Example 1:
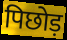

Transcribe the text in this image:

पिछोड़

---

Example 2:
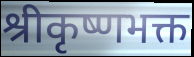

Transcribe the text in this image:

श्रीकृष्णभक्त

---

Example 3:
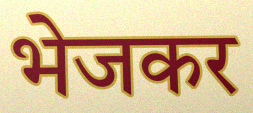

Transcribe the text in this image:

भेजकर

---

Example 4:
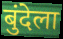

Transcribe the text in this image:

बुंदेला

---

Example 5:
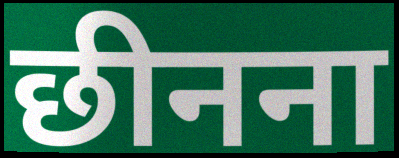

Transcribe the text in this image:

छीनना